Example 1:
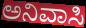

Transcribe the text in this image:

ಅನಿವಾಸಿ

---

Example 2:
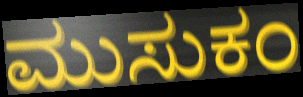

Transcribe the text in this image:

ಮುಸುಕಂ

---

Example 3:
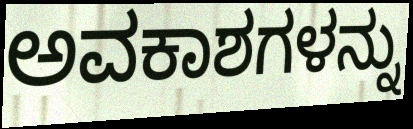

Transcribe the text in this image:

ಅವಕಾಶಗಳನ್ನು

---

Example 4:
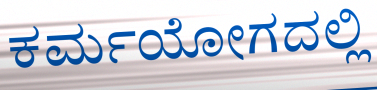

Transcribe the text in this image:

ಕರ್ಮಯೋಗದಲ್ಲಿ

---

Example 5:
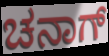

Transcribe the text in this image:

ಚನಾಗ್